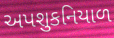
અપશુકનિયાળ